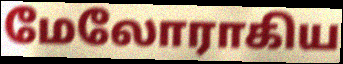
மேலோராகிய